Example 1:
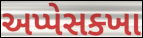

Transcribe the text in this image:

અપ્પેસક્ખા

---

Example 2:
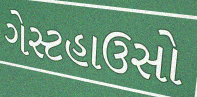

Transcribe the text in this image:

ગેસ્ટહાઉસો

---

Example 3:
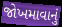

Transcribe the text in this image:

જોખમાવાનું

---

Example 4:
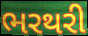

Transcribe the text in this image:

ભરથરી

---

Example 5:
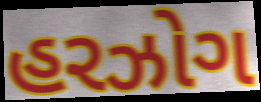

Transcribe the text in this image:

હરઝોગ